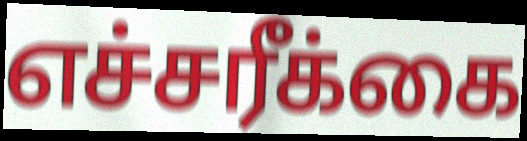
எச்சரீக்கை